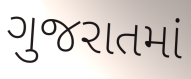
ગુજરાતમાં